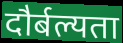
दौर्बल्यता